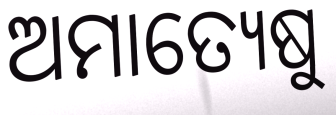
ଅମାତ୍ୟେଷୁ